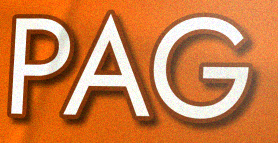
PAG